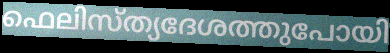
ഫെലിസ്ത്യദേശത്തുപോയി